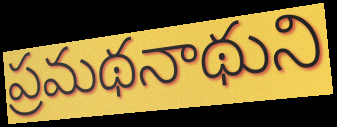
ప్రమథనాథుని